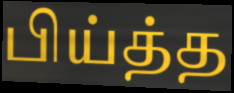
பிய்த்த